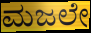
ಮಜಲೇ